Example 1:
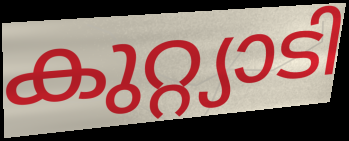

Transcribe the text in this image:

കുറ്റ്യാടി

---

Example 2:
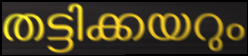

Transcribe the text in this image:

തട്ടിക്കയറും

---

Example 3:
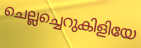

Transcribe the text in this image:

ചെല്ലച്ചെറുകിളിയേ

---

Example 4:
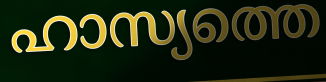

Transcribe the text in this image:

ഹാസ്യത്തെ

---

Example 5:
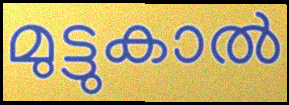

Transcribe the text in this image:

മുട്ടുകാൽ